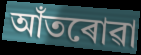
আঁতৰোৱা